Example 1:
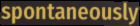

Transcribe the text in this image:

spontaneously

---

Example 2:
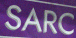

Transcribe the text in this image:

SARC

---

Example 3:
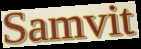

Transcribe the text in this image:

Samvit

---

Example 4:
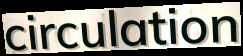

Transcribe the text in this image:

circulation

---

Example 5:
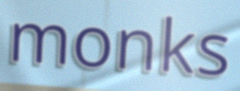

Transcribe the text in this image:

monks